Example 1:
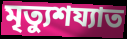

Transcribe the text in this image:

মৃত্যুশয্যাত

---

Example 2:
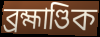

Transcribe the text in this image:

ব্ৰহ্মাণ্ডিক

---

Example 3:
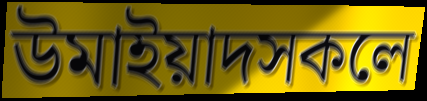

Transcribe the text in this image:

উমাইয়াদসকলে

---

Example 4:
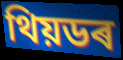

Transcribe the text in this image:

থিয়ডৰ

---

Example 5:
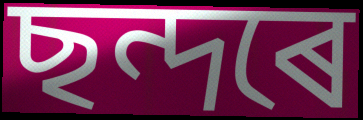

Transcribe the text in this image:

ছন্দৰে